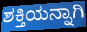
ಶಕ್ತಿಯನ್ನಾಗಿ